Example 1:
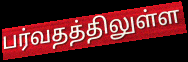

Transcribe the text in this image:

பர்வதத்திலுள்ள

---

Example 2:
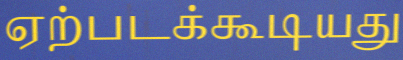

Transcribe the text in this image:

ஏற்படக்கூடியது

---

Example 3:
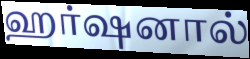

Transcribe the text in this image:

ஹர்ஷனால்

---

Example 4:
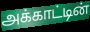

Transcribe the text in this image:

அக்காட்டின்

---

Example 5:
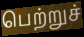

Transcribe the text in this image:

பெற்றுச்